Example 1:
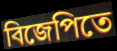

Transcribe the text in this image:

বিজেপিতে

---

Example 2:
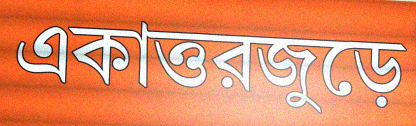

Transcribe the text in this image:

একাত্তরজুড়ে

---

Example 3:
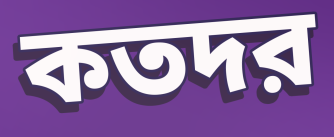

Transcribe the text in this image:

কতদর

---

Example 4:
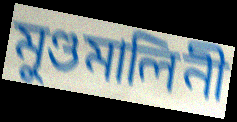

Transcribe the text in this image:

মুণ্ডমালিনী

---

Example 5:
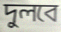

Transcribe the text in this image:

দুলবে